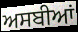
ਅਸਬੀਆਂ